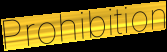
Prohibition